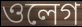
ওলেগ